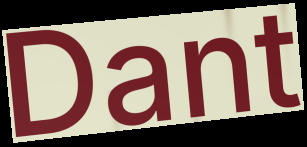
Dant